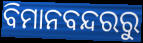
ବିମାନବନ୍ଦରରୁ